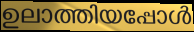
ഉലാത്തിയപ്പോൾ